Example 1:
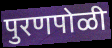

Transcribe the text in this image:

पुरणपोळी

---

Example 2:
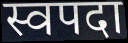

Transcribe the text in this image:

स्वपदा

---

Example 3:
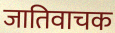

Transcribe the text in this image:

जातिवाचक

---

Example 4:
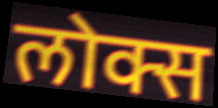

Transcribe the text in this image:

लोक्स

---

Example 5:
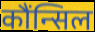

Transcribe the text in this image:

कौंन्सिल